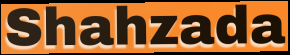
Shahzada